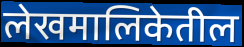
लेखमालिकेतील